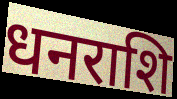
धनराशि